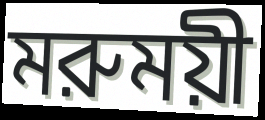
মরুময়ী